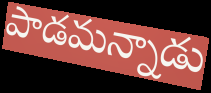
పాడమన్నాడు